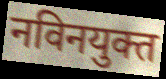
नविनयुक्त